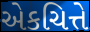
એકચિત્તે